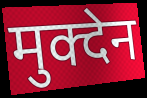
मुक्देन